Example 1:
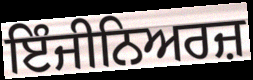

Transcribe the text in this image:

ਇੰਜੀਨਿਅਰਜ਼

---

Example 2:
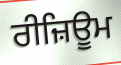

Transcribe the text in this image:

ਰੀਜ਼ਿਊਮ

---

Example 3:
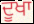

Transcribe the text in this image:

ਦੂਖਾ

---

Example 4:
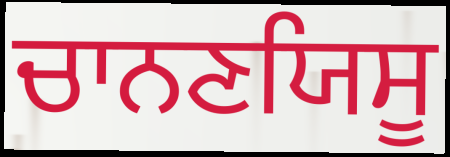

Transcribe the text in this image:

ਚਾਨਣਯਿਸੂ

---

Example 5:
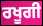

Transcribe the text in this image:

ਰਖੂਗੀ